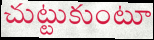
చుట్టుకుంటూ